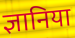
ज्ञानिया